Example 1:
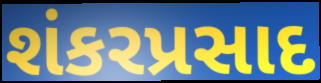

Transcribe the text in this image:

શંકરપ્રસાદ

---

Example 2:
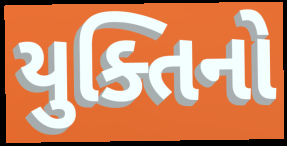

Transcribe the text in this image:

યુક્તિનો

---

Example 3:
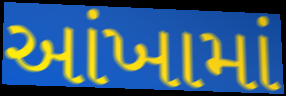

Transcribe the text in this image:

આંખામાં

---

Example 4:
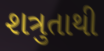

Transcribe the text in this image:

શત્રુતાથી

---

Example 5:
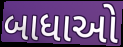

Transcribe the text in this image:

બાધાઓ